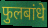
फुलबांधे